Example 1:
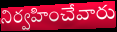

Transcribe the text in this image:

నిర్వహించేవారు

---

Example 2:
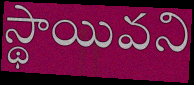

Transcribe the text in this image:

స్థాయివని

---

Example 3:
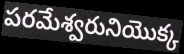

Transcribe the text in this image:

పరమేశ్వరునియొక్క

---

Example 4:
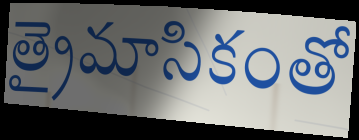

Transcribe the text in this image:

త్రైమాసికంతో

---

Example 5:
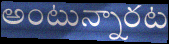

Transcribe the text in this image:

అంటున్నారట